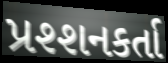
પ્રશ્શનકર્તા